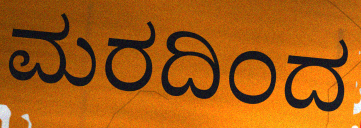
ಮರದಿಂದ